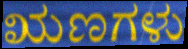
ಋಣಗಳು